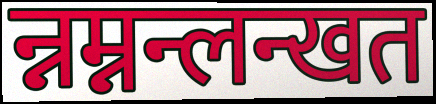
न्नम्नन्लन्खत